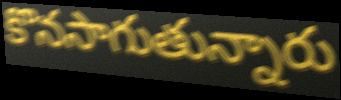
కొనసాగుతున్నారు